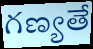
గణ్యతే